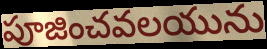
పూజించవలయును